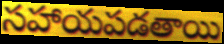
సహాయపడతాయి